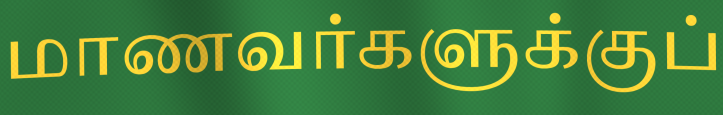
மாணவர்களுக்குப்